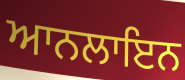
ਆਨਲਾਇਨ